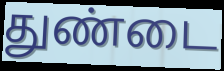
துண்டை